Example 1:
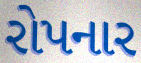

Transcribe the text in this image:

રોપનાર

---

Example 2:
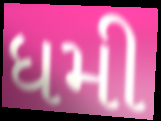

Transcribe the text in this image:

ધમી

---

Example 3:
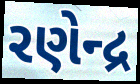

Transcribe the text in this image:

રણેન્દ્ર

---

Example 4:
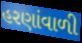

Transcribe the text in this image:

હરણાંવાળી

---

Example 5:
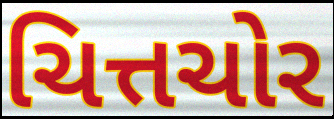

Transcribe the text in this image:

ચિત્તચોર